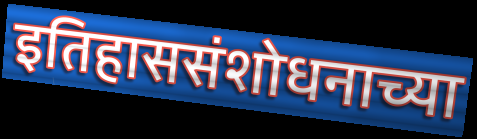
इतिहाससंशोधनाच्या